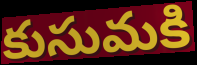
కుసుమకి